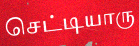
செட்டியாரு